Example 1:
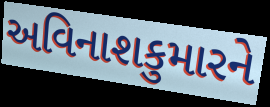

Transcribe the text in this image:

અવિનાશકુમારને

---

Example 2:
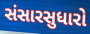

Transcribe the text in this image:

સંસારસુધારો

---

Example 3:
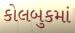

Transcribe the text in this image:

કોલબુકમાં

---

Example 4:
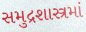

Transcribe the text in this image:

સમુદ્રશાસ્ત્રમાં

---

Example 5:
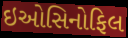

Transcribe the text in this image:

ઇઓસિનોફિલ